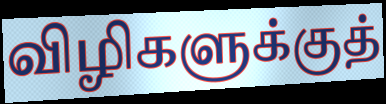
விழிகளுக்குத்